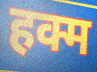
हक्म